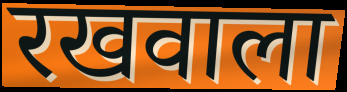
रखवाला